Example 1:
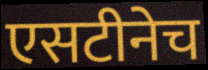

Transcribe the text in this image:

एसटीनेच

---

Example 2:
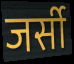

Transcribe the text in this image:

जर्सी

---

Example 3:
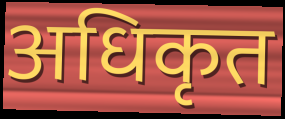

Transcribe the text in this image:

अधिकृत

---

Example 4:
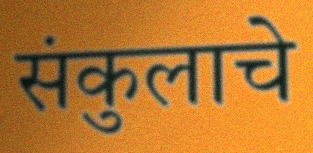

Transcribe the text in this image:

संकुलाचे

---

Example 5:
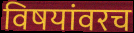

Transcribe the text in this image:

विषयांवरच